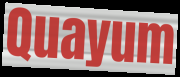
Quayum